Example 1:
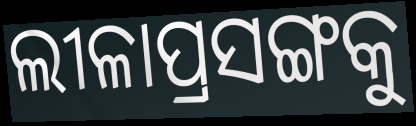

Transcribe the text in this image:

ଲୀଳାପ୍ରସଙ୍ଗକୁ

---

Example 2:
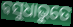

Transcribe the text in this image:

ବସୁଧାଭୁତେ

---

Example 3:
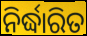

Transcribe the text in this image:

ନିର୍ଦ୍ଧାରିତ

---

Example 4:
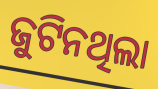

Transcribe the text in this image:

ଜୁଟିନଥିଲା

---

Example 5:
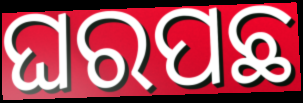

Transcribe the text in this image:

ଘରପଛ